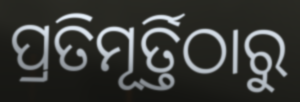
ପ୍ରତିମୂର୍ତ୍ତିଠାରୁ